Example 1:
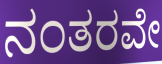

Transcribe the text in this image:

ನಂತರವೇ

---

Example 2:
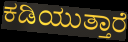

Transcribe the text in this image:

ಕಡಿಯುತ್ತಾರೆ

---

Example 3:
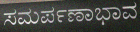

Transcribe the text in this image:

ಸಮರ್ಪಣಾಭಾವ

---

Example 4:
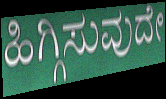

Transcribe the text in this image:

ಹಿಗ್ಗಿಸುವುದೇ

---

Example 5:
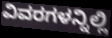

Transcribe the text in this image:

ವಿವರಗಳನ್ನಿಲ್ಲಿ